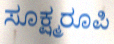
ಸೂಕ್ಷ್ಮರೂಪಿ